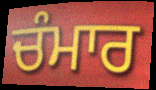
ਚੰਮਾਰ